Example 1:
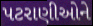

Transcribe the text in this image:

પટરાણીઓને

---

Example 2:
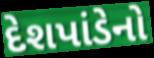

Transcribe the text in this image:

દેશપાંડેનો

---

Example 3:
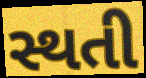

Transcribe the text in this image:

સ્થતી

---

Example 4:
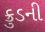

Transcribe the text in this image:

ક્રુડની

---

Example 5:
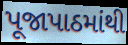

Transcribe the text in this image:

પૂજાપાઠમાંથી